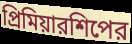
প্রিমিয়ারশিপের